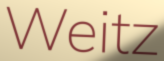
Weitz